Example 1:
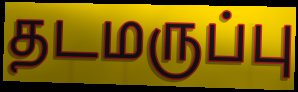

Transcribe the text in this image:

தடமருப்பு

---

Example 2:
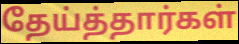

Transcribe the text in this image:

தேய்த்தார்கள்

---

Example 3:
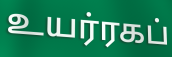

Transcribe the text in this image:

உயர்ரகப்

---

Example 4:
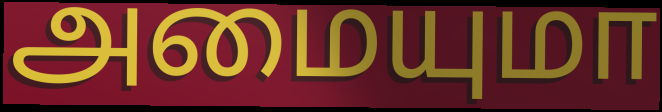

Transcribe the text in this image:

அமையுமா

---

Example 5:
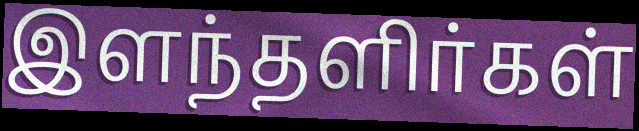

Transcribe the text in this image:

இளந்தளிர்கள்